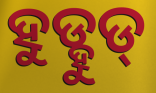
ହୁଡ୍ହୁଡ୍